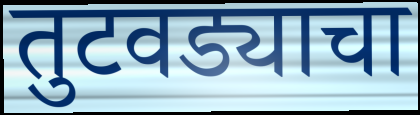
तुटवड्याचा